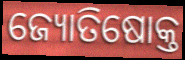
ଜ୍ୟୋତିଷୋକ୍ତ